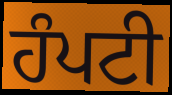
ਹੰਪਟੀ